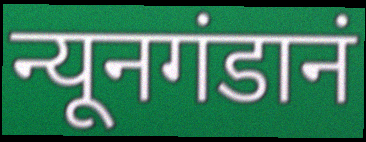
न्यूनगंडानं